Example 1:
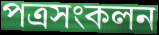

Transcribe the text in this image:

পত্রসংকলন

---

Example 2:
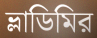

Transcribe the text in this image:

ভ্লাডিমির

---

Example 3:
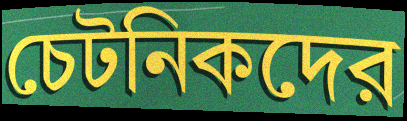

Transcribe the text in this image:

চেটনিকদের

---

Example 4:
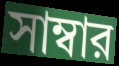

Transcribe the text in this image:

সাম্বার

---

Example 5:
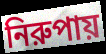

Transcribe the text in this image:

নিরুপায়